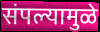
संपल्यामुळे